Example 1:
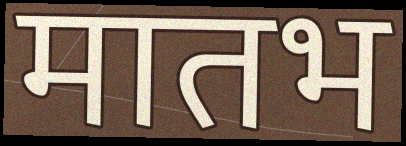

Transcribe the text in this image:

मातभ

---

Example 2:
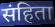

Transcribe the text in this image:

संहिता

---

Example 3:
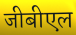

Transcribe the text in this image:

जीबीएल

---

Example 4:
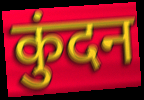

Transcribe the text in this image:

कुंदन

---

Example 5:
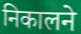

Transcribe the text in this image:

निकालने